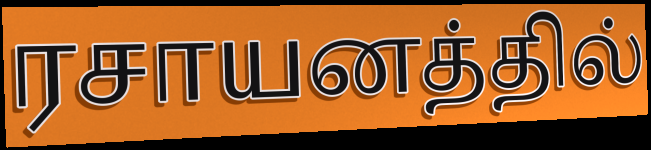
ரசாயனத்தில்